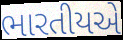
ભારતીયએ